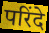
परिंदे